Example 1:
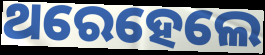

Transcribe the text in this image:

ଥରେହେଲେ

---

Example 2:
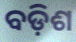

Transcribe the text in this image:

ବଡ଼ିଶ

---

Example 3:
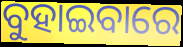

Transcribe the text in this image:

ବୁହାଇବାରେ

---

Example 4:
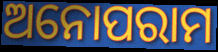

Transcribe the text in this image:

ଅନୋପରାମ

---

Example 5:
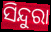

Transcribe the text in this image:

ସିନ୍ଦୁରା